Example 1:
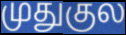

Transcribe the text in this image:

முதுகுல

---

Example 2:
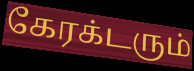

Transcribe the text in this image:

கேரக்டரும்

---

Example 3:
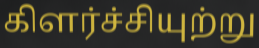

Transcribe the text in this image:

கிளர்ச்சியுற்று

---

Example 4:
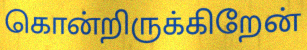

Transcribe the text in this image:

கொன்றிருக்கிறேன்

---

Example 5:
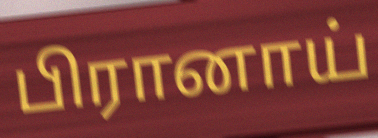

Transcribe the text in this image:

பிரானாய்